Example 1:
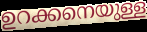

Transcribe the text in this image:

ഉറക്കനെയുള്ള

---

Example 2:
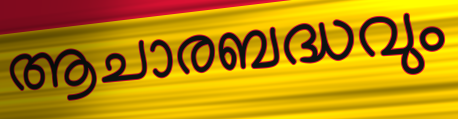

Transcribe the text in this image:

ആചാരബദ്ധവും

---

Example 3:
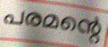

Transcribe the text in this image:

പരമന്റെ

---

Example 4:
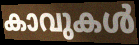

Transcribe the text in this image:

കാവുകൾ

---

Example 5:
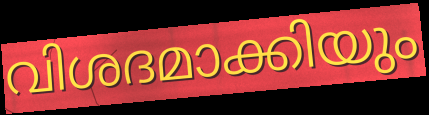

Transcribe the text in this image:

വിശദമാക്കിയും